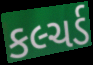
કલ્ચર્ડ